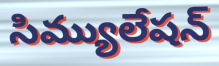
సిమ్యులేషన్